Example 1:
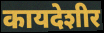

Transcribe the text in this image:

कायदेशीर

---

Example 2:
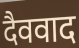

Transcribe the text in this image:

दैववाद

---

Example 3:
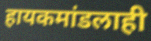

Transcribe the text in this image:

हायकमांडलाही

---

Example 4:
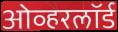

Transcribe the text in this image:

ओव्हरलॉर्ड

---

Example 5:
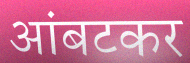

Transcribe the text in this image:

आंबटकर